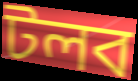
টলব